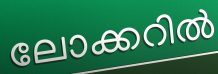
ലോക്കറിൽ